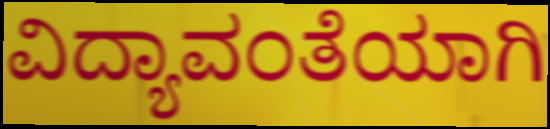
ವಿದ್ಯಾವಂತೆಯಾಗಿ